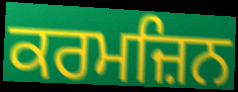
ਕਰਮਜ਼ਿਨ